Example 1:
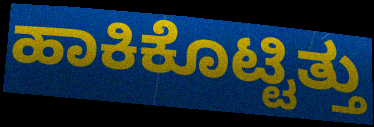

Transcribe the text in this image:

ಹಾಕಿಕೊಟ್ಟಿತ್ತು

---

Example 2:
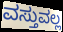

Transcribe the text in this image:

ವಸ್ತುವಲ್ಲ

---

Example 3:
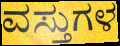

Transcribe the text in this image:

ವಸ್ತುಗಳ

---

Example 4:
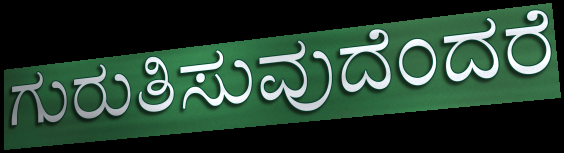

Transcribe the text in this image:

ಗುರುತಿಸುವುದೆಂದರೆ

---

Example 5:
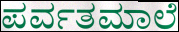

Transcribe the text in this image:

ಪರ್ವತಮಾಲೆ